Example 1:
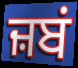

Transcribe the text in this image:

ਜ਼ਬਂ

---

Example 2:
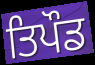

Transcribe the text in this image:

ਤਿਪੌਡ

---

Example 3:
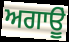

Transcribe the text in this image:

ਅਗਾਊੂਂ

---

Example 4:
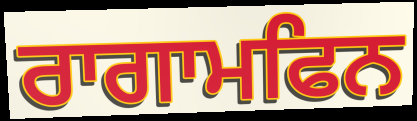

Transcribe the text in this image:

ਰਾਗਾਮਫਿਨ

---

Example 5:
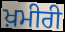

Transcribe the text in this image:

ਖ਼ਮੀਰੀ